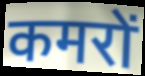
कमरों